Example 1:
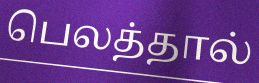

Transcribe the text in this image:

பெலத்தால்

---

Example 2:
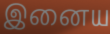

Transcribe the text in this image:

இனைய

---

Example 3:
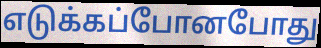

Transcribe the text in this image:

எடுக்கப்போனபோது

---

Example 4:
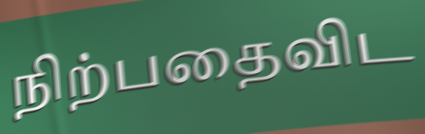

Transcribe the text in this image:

நிற்பதைவிட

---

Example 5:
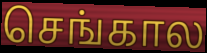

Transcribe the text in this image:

செங்கால